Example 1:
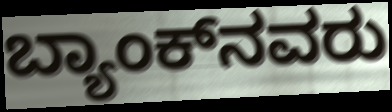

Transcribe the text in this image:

ಬ್ಯಾಂಕ್‌ನವರು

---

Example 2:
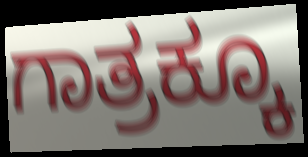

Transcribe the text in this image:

ಗಾತ್ರಕ್ಕೂ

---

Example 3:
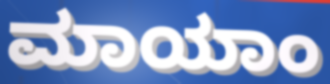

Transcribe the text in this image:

ಮಾಯಾಂ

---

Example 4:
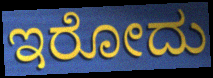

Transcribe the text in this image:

ಇರೋದು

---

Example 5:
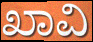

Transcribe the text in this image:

ಖಾವಿ